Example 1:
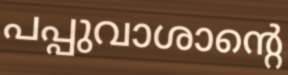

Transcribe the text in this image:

പപ്പുവാശാന്റെ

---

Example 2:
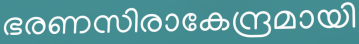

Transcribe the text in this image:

ഭരണസിരാകേന്ദ്രമായി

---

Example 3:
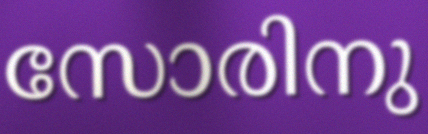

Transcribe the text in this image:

സോരിനു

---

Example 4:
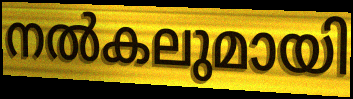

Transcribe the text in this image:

നൽകലുമായി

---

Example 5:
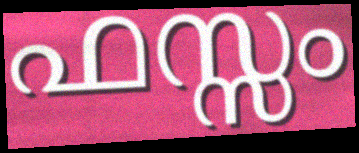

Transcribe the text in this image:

ഫസ്സം